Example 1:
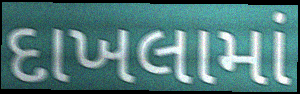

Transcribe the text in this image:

દાખલામાં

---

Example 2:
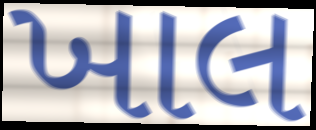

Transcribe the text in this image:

ખાલ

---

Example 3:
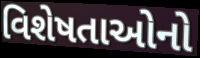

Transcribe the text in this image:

વિશેષતાઓનો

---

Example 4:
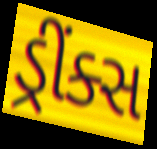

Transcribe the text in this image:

ડ્રીંક્સ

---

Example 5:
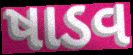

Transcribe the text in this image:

ષાડવ